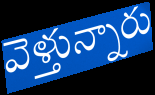
వెళ్తున్నారు